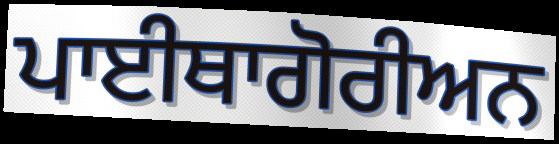
ਪਾਈਥਾਗੋਰੀਅਨ